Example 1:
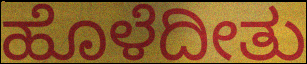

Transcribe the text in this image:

ಹೊಳೆದೀತು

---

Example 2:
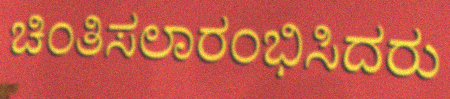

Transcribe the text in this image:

ಚಿಂತಿಸಲಾರಂಭಿಸಿದರು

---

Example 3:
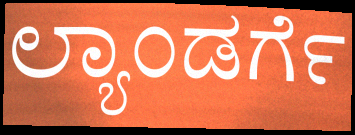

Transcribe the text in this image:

ಲ್ಯಾಂಡರ್ಗೆ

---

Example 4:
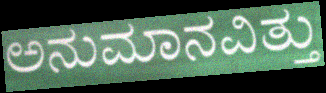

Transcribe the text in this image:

ಅನುಮಾನವಿತ್ತು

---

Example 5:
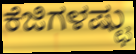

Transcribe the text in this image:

ಕೆಜಿಗಳಷ್ಟು